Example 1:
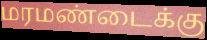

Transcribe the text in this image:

மரமண்டைக்கு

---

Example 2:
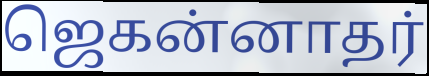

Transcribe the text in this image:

ஜெகன்னாதர்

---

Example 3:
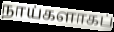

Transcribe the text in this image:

நாய்களாகப்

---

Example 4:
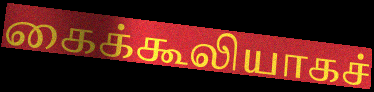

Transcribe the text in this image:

கைக்கூலியாகச்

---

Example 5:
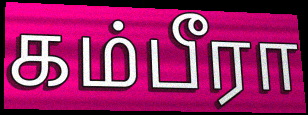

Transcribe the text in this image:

கம்பீரா